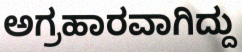
ಅಗ್ರಹಾರವಾಗಿದ್ದು